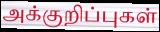
அக்குறிப்புகள்